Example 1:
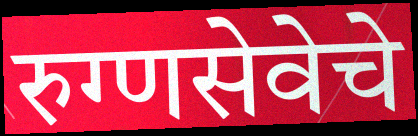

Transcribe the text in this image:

रुग्णसेवेचे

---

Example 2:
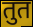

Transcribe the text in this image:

तुत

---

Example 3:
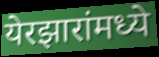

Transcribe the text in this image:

येरझारांमध्ये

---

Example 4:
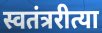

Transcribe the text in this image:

स्वतंत्ररीत्या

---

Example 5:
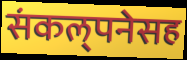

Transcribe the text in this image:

संकल्पनेसह